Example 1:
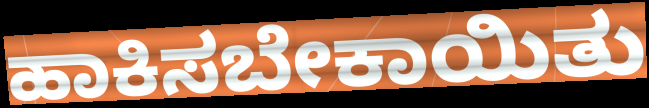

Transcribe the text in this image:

ಹಾಕಿಸಬೇಕಾಯಿತು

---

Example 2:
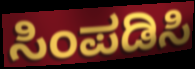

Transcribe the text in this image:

ಸಿಂಪಡಿಸಿ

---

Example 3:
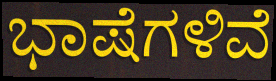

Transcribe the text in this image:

ಭಾಷೆಗಳಿವೆ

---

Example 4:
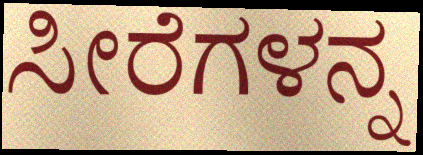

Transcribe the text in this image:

ಸೀರೆಗಳನ್ನ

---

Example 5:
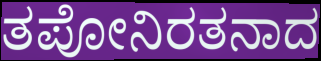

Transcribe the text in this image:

ತಪೋನಿರತನಾದ